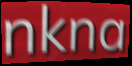
nkna